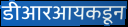
डीआरआयकडून